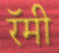
रॅमी